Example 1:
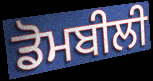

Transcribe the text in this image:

ਡੋਮਬੀਲੀ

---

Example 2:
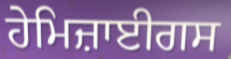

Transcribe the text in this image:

ਹੇਮਿਜ਼ਾਈਗਸ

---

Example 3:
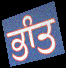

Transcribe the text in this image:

ਭਾੰਤ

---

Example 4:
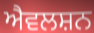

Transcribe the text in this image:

ਐਵਲਸ਼ਨ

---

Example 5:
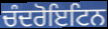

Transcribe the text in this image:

ਚੰਦਰੋਇਟਿਨ